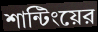
শান্টিংয়ের